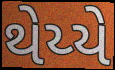
થેય્યે